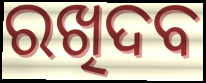
ରଖିଦବ